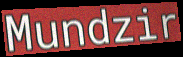
Mundzir